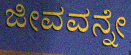
ಜೀವವನ್ನೇ